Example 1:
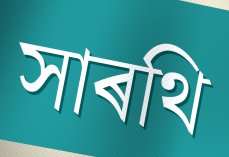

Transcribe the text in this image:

সাৰথি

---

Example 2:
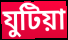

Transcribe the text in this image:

যুটিয়া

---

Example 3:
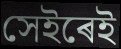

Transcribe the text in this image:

সেইৰেই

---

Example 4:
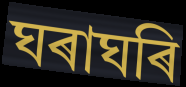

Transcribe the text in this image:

ঘৰাঘৰি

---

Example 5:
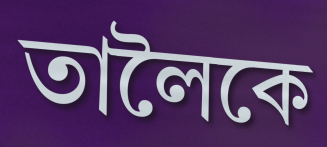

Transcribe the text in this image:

তালৈকে